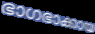
ഭാഗഭാക്കായ